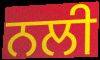
ਨਲੀ